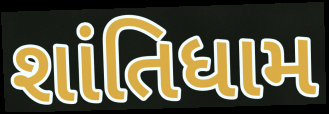
શાંતિધામ